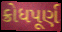
ક્રોધપૂર્ણ